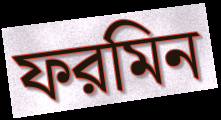
ফরমিন